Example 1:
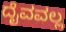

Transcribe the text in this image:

ದೈವವಲ್ಲ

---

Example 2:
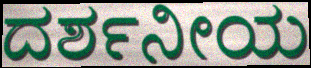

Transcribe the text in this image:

ದರ್ಶನೀಯ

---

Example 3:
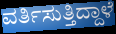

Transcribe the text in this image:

ವರ್ತಿಸುತ್ತಿದ್ದಾಳೆ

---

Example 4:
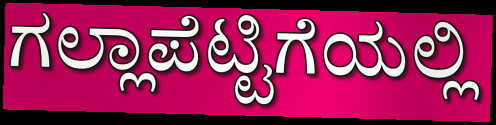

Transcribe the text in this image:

ಗಲ್ಲಾಪೆಟ್ಟಿಗೆಯಲ್ಲಿ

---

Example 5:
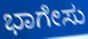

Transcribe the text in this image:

ಭಾಗೇಸು